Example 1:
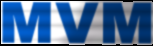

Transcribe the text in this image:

MVM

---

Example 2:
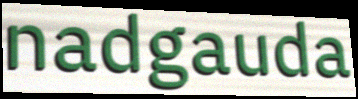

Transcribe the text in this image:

nadgauda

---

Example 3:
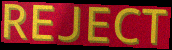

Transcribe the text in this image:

REJECT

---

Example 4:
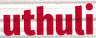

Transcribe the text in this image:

uthuli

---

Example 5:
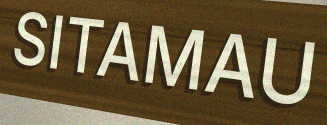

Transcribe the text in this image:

SITAMAU